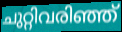
ചുറ്റിവരിഞ്ഞ്